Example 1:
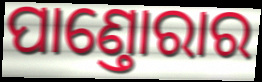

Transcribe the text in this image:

ପାଣ୍ତୋରାର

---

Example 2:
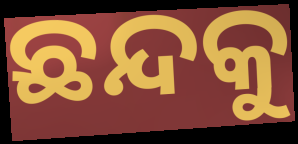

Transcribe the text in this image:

ଛନ୍ଦକୁ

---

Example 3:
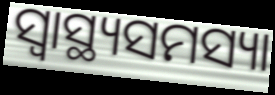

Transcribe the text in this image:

ସ୍ୱାସ୍ଥ୍ୟସମସ୍ୟା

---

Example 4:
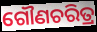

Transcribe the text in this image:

ଗୌଣଚରିତ୍ର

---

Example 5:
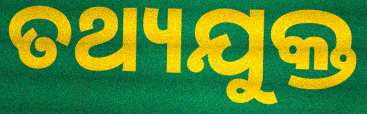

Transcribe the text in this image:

ତଥ୍ୟଯୁକ୍ତ